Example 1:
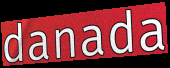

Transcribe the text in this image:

danada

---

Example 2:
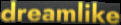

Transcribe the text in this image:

dreamlike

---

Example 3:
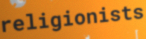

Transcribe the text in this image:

religionists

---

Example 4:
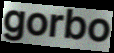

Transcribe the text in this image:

gorbo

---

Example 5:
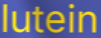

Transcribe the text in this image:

lutein